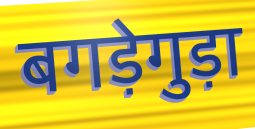
बगड़ेगुड़ा